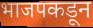
भाजपकडून